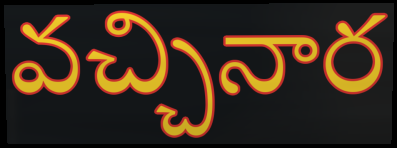
వచ్చినార